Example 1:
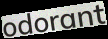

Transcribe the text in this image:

odorant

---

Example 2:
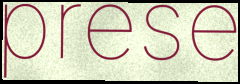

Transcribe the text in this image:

prese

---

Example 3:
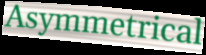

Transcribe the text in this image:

Asymmetrical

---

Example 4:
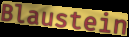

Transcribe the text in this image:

Blaustein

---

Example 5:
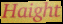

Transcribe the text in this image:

Haight